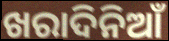
ଖରାଦିନିଆଁ